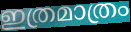
ഇത്രമാത്രം